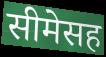
सीमेसह